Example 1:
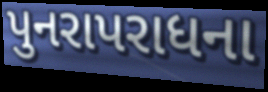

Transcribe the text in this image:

પુનરાપરાધના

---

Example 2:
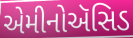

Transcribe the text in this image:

એમીનોઍસિડ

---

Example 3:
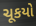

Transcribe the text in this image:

ચૂકયો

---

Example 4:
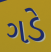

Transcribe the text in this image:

ગડે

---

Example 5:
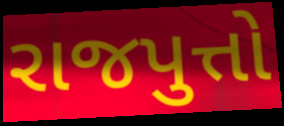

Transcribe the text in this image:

રાજપુત્તો